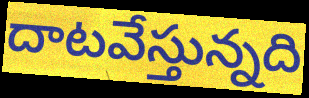
దాటవేస్తున్నది